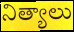
నిత్యాలు